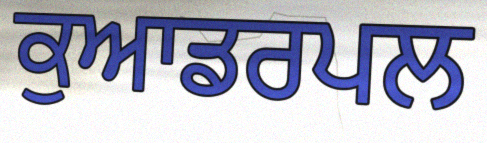
ਕੁਆਡਰਪਲ